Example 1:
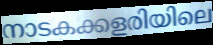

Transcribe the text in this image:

നാടകക്കളരിയിലെ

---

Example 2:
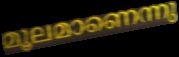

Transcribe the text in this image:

മൂലമാണെന്നു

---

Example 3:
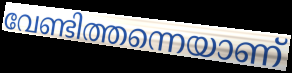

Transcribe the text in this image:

വേണ്ടിത്തന്നെയാണ്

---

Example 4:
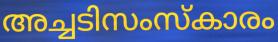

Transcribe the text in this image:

അച്ചടിസംസ്കാരം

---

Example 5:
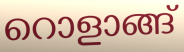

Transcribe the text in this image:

റൊളാങ്ങ്